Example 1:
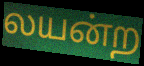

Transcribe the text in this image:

லயன்ற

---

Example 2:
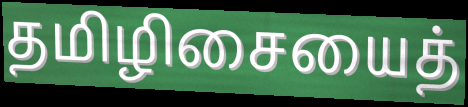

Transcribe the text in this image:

தமிழிசையைத்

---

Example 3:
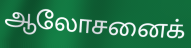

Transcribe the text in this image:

ஆலோசனைக்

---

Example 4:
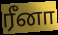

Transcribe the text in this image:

ரீனா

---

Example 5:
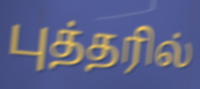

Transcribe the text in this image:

புத்தரில்